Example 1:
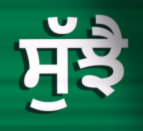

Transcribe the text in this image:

ਸੁੱਝੈ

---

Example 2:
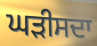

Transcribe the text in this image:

ਘੜੀਸਦਾ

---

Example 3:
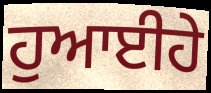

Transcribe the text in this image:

ਹੁਆਈਹੇ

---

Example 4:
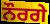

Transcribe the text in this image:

ਨੌਰਗੇ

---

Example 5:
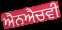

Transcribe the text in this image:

ਐਨਐਚਵੀ